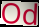
Od